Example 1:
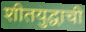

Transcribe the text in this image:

शीतयुद्धाची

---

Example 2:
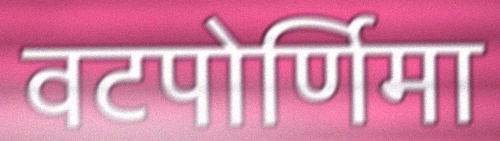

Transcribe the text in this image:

वटपोर्णिमा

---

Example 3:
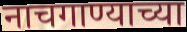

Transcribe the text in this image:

नाचगाण्याच्या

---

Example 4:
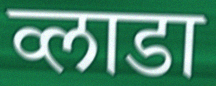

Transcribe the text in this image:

व्लाडा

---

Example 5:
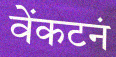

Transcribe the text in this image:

वेंकटनं